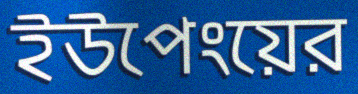
ইউপেংয়ের